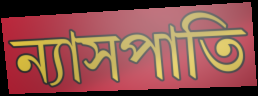
ন্যাসপাতি